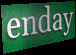
enday